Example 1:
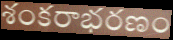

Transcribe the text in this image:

శంకరాభరణం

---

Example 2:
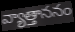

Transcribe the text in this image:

వ్యాత్తాననం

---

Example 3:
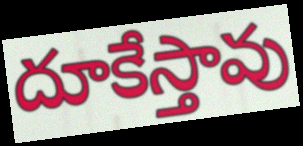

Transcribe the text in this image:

దూకేస్తావు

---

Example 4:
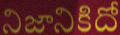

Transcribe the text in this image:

నిజానికిదో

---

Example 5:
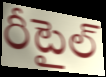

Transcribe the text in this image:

రీటైల్